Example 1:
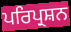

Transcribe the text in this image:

ਪਰਿਪ੍ਰਸ਼ਨ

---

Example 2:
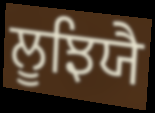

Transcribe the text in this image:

ਲੂਝਿਯੈ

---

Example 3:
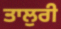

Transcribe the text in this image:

ਤਾਲੁਰੀ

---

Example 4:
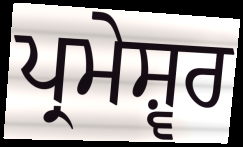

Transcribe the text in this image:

ਪ੍ਰਮੇਸ਼੍ਵਰ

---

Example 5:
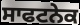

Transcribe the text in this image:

ਸਾਫਟਨੇਕ